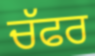
ਚੱਫਰ